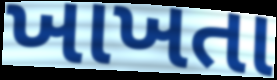
ખાખતા